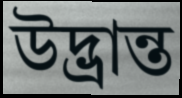
উদ্ভ্রান্ত